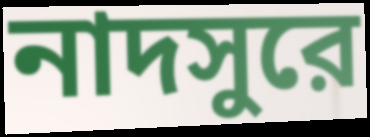
নাদসুরে